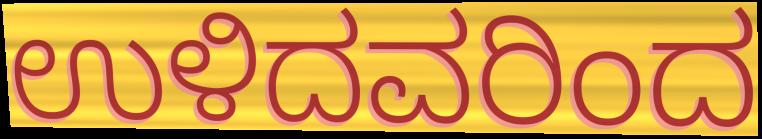
ಉಳಿದವರಿಂದ